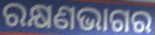
ରକ୍ଷଣଭାଗର